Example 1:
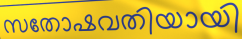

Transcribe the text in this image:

സതോഷവതിയായി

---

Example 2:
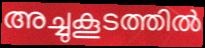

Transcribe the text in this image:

അച്ചുകൂടത്തിൽ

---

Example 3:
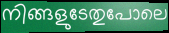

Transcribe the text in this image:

നിങ്ങളുടേതുപോലെ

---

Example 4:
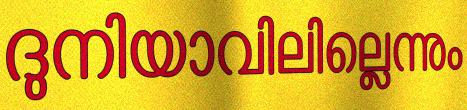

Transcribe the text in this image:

ദുനിയാവിലില്ലെന്നും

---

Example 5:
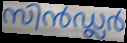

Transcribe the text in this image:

സിൻഡ്ലർ